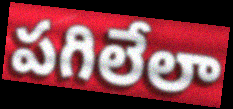
పగిలేలా